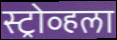
स्ट्रोव्हला